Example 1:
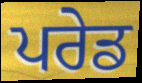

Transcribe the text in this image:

ਪਰੇਡ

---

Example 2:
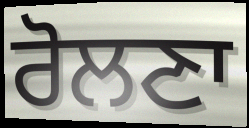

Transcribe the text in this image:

ਰੋਲਣਾ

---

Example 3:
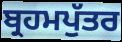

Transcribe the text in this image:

ਬ੍ਰਹਮਪੁੱਤਰ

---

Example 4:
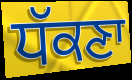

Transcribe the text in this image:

ਧੱਕਣਾ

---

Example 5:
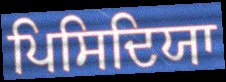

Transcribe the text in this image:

ਪਿਸਿਦਿਯਾ